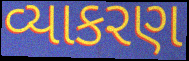
વ્યાકરણ